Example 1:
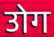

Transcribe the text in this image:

उोग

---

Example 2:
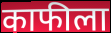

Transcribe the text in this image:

काफीला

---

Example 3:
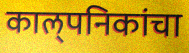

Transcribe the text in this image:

काल्पनिकांचा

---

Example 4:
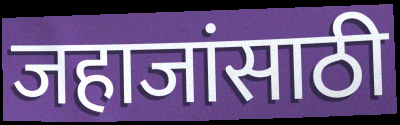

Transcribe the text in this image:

जहाजांसाठी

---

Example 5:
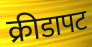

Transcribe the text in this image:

क्रीडापट